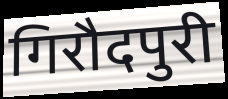
गिरौदपुरी